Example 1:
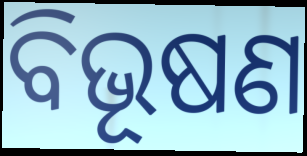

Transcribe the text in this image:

ବିଭୂଷଣ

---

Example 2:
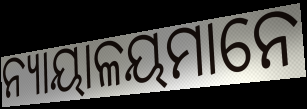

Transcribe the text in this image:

ନ୍ୟାୟାଳୟମାନେ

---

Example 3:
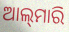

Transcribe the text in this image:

ଆଲ୍‌ମାରି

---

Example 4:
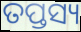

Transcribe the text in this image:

ତପ୍ତସ୍ୟ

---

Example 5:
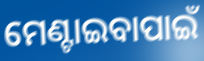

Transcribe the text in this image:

ମେଣ୍ଟାଇବାପାଇଁ